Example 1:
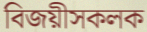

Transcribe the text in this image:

বিজয়ীসকলক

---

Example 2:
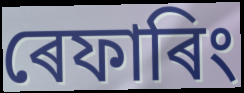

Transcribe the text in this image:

ৰেফাৰিং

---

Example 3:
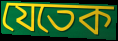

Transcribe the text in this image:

যেতেক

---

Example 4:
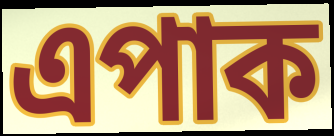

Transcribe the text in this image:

এপাক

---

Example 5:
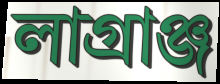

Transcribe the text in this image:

লাগ্ৰাঞ্জ